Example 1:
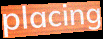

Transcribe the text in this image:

placing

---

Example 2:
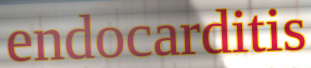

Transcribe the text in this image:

endocarditis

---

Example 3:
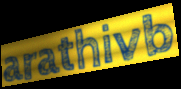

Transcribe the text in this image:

arathivb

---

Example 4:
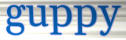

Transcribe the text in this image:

guppy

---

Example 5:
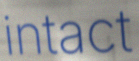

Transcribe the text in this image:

intact